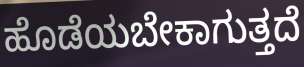
ಹೊಡೆಯಬೇಕಾಗುತ್ತದೆ